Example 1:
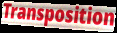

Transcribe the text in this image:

Transposition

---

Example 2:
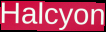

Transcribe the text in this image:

Halcyon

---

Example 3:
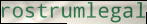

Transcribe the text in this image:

rostrumlegal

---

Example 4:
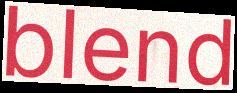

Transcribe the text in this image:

blend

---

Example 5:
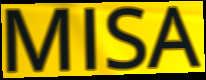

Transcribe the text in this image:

MISA